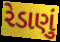
રેડાણું